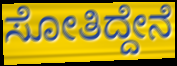
ಸೋತಿದ್ದೇನೆ